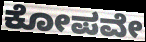
ಕೋಪವೇ